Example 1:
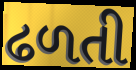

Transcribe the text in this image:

ઢળતી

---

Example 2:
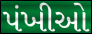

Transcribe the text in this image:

પંખીઓ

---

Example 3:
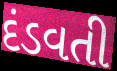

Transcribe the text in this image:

દંડવતી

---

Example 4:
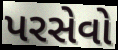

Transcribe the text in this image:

પરસેવો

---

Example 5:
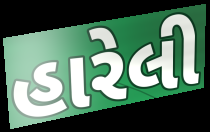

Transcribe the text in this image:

હારેલી